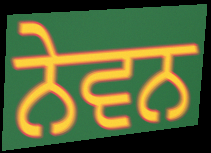
ਨੇਵਨ